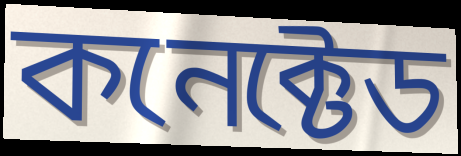
কনেক্টেড